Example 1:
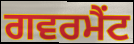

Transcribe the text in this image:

ਗਵਰਮੈਂਟ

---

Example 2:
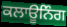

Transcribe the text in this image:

ਕਲਾਊਨਿੰਗ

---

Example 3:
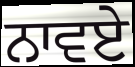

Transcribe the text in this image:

ਨਾਵਏ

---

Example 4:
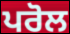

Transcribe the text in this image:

ਪਰੋਲ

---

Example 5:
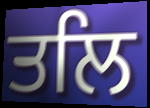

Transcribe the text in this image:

ਤਲਿ